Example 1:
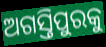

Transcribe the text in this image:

ଅଗସ୍ତିପୁରକୁ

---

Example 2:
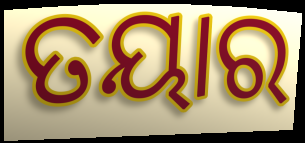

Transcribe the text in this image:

ତୟାର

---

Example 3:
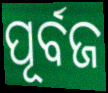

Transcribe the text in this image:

ପୂର୍ବଜ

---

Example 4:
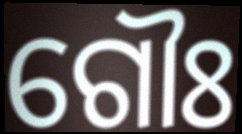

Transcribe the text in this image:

ଗୌଃ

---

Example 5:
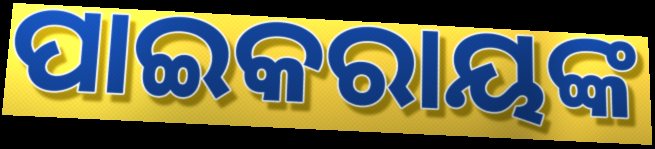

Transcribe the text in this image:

ପାଇକରାୟଙ୍କ